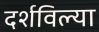
दर्शविल्या